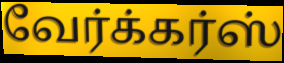
வேர்க்கர்ஸ்